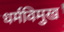
धर्मविमुख